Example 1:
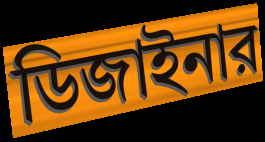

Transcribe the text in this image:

ডিজাইনার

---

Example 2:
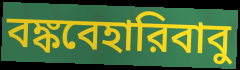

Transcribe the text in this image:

বঙ্কবেহারিবাবু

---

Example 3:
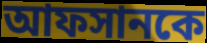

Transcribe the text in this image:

আফসানকে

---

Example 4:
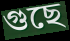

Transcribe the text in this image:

গুছে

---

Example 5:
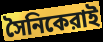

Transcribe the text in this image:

সৈনিকেরাই